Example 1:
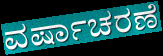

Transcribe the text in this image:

ವರ್ಷಾಚರಣೆ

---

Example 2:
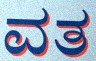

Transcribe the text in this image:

ವತ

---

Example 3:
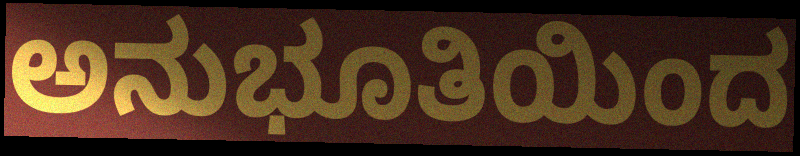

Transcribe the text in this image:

ಅನುಭೂತಿಯಿಂದ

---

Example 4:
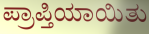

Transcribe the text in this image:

ಪ್ರಾಪ್ತಿಯಾಯಿತು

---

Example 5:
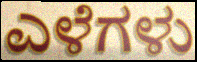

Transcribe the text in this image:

ಎಳೆಗಳು